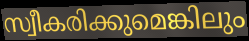
സ്വീകരിക്കുമെങ്കിലും